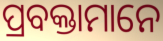
ପ୍ରବକ୍ତାମାନେ